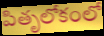
పితృలోకంలో